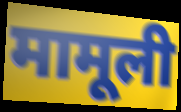
मामूली